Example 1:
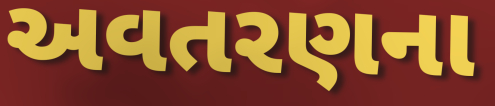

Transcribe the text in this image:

અવતરણના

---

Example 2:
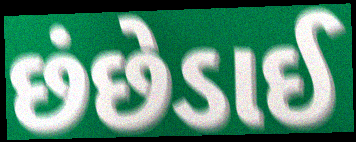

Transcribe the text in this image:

છંછેડાઈ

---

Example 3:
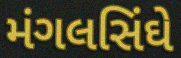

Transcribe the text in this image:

મંગલસિંઘે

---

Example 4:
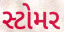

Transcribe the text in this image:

સ્ટોમર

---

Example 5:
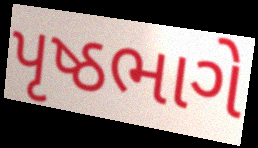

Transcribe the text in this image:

પૃષ્ઠભાગે